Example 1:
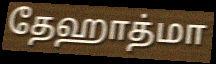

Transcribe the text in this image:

தேஹாத்மா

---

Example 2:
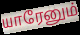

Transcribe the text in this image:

யாரேனும்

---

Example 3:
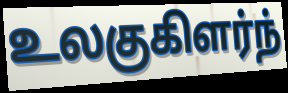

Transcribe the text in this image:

உலகுகிளர்ந்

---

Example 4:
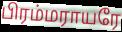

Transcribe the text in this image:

பிரம்மராயரே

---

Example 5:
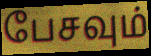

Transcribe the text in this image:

பேசவும்